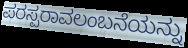
ಪರಸ್ಪರಾವಲಂಬನೆಯನ್ನು